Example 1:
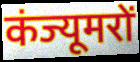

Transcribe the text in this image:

कंज्यूमरों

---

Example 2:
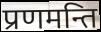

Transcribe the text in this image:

प्रणमन्ति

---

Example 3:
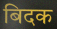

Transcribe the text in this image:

बिदक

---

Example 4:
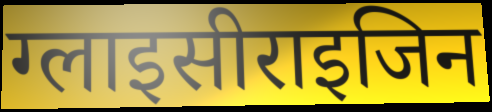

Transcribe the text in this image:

ग्लाइसीराइजिन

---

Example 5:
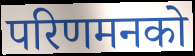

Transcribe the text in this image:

परिणमनको